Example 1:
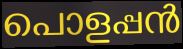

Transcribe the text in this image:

പൊളപ്പൻ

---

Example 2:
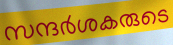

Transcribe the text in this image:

സന്ദർശകരുടെ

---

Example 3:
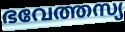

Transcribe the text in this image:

ഭവേത്തസ്യ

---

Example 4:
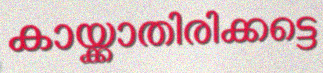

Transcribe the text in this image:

കായ്ക്കാതിരിക്കട്ടെ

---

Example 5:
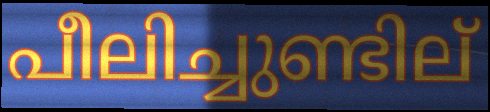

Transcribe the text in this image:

പീലിച്ചുണ്ടില്